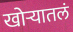
खोऱ्यातलं